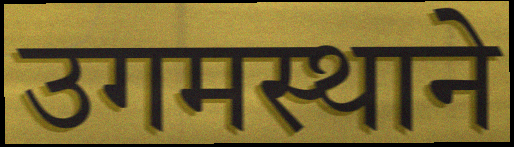
उगमस्थाने